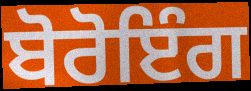
ਬੋਰੋਇੰਗ